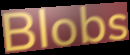
Blobs